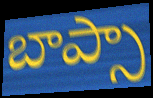
బాప్సా